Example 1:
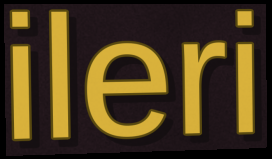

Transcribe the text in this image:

ileri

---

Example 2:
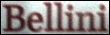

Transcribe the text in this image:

Bellini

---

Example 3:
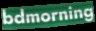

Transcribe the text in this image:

bdmorning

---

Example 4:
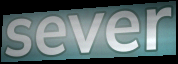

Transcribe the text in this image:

sever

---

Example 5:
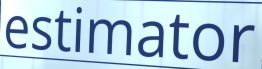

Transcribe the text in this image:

estimator